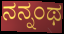
ನನ್ನಂಥ